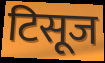
टिसूज